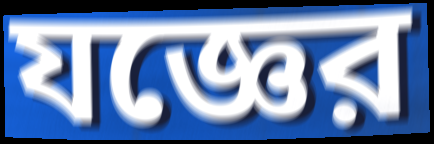
যজ্ঞের